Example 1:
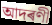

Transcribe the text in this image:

আদৰণী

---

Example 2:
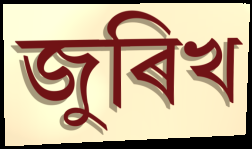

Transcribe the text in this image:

জুৰিখ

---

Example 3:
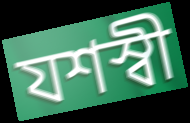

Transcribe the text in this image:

যশস্বী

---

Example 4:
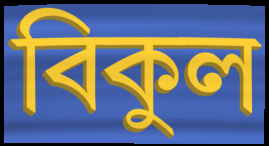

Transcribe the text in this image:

বিকুল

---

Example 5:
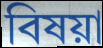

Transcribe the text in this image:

বিষয়া